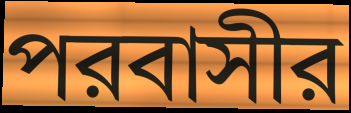
পরবাসীর